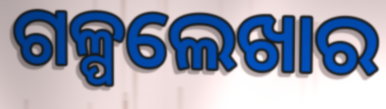
ଗଳ୍ପଲେଖାର